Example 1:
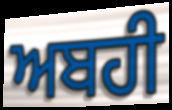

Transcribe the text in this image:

ਅਬਹੀ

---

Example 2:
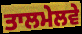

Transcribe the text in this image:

ਤਾਲਮੇਲਵੇ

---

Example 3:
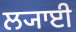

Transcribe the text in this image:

ਲ੍ਯਾਈ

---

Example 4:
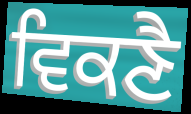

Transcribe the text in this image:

ਵਿਕਣੈ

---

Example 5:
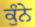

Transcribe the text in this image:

ਕੁੰਨੇ